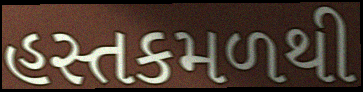
હસ્તકમળથી